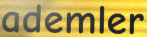
ademler